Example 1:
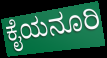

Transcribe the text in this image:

ಕೈಯನೂರಿ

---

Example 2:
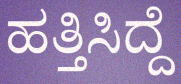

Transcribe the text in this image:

ಹತ್ತಿಸಿದ್ದೆ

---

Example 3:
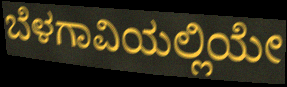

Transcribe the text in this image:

ಬೆಳಗಾವಿಯಲ್ಲಿಯೇ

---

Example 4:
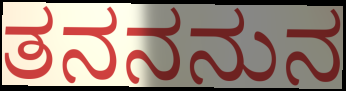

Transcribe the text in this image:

ತನನನುನ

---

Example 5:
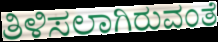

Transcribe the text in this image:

ತಿಳಿಸಲಾಗಿರುವಂತೆ